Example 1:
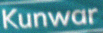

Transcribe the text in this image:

Kunwar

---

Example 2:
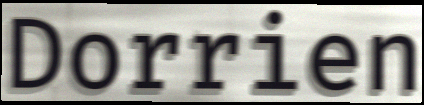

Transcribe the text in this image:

Dorrien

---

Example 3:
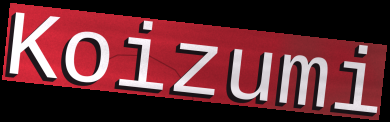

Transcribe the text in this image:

Koizumi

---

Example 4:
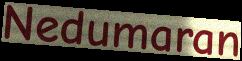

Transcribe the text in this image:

Nedumaran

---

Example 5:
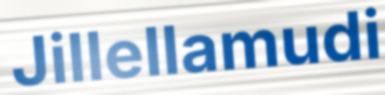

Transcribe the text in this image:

Jillellamudi